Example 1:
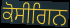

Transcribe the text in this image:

ਕੋਸੀਗਿਨ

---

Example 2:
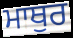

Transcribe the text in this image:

ਮਾਥੁਰ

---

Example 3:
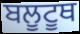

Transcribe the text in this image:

ਬਲੂਟੂਥ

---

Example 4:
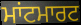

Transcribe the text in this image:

ਮਾਂਟਮਾਰਟ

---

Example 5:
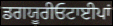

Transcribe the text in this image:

ਡਗਯੂਰੀਓਟਾਈਪਾਂ